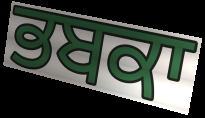
ਭਬਕਾ